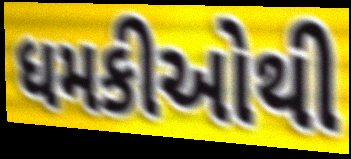
ધમકીઓથી